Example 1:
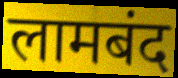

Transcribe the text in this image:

लामबंद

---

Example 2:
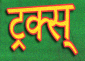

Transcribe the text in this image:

ट्रक्स्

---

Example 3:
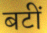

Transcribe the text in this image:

बटीं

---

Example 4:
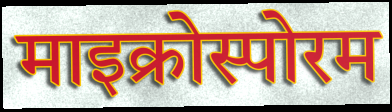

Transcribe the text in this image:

माइक्रोस्पोरम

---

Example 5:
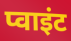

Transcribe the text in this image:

प्वाइंट